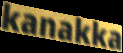
kanakka